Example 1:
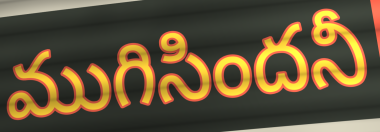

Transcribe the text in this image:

ముగిసిందనీ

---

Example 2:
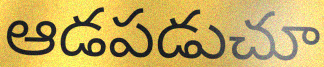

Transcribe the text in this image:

ఆడపడుచూ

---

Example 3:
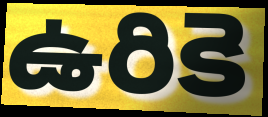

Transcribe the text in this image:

ఉరికె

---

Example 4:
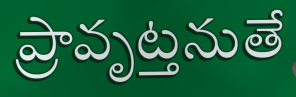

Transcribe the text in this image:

ప్రావృట్తనుతే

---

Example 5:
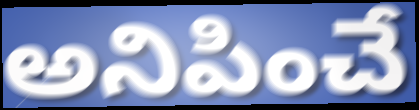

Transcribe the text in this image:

అనిపించే